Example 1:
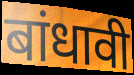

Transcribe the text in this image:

बांधावी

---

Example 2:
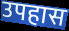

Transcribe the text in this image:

उपहास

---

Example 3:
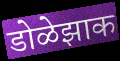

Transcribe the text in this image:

डोळेझाक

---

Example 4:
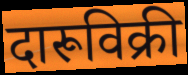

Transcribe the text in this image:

दारूविक्री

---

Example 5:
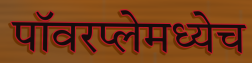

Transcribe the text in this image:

पॉवरप्लेमध्येच